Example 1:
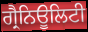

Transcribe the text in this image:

ਗ੍ਰੈਨਿਊਲਿਟੀ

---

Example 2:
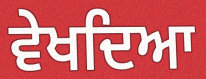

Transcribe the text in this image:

ਵੇਖਦਿਆ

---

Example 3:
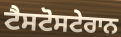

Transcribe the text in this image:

ਟੈਸਟੋਸਟੇਰਾਨ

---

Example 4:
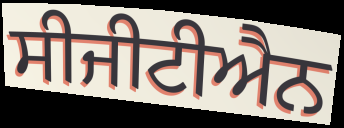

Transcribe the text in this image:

ਸੀਜੀਟੀਐਨ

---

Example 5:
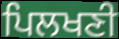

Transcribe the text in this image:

ਪਿਲਖਣੀ